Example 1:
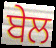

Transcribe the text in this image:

ਬੇਲ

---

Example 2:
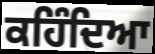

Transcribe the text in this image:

ਕਹਿੰਦਿਆ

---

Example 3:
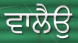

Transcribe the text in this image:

ਵਾਲੈਉ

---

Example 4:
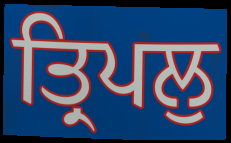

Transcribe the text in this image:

ਤ੍ਰਿਪਲੁ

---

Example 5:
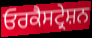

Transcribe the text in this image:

ਓਰਕੈਸਟ੍ਰੇਸ਼ਨ